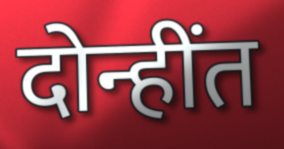
दोन्हींत